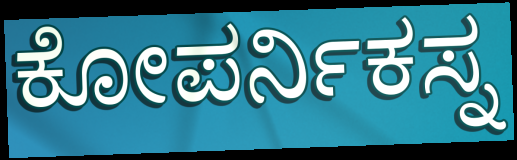
ಕೋಪರ್ನಿಕಸ್ನ